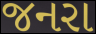
જનરા